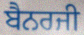
ਬੈਨਰਜੀ